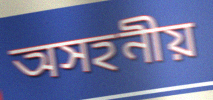
অসহনীয়